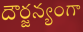
దౌర్జన్యంగా